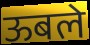
ऊबले